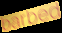
barbed